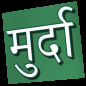
मुर्दा